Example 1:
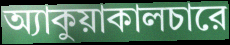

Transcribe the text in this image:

অ্যাকুয়াকালচারে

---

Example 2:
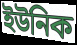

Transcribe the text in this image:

ইউনিক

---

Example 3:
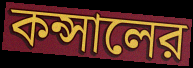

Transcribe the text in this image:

কন্সালের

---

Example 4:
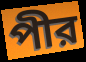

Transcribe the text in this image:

পীর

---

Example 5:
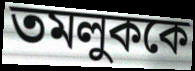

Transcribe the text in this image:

তমলুককে